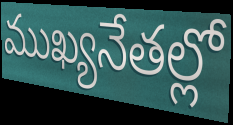
ముఖ్యనేతల్లో